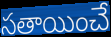
సతాయించే